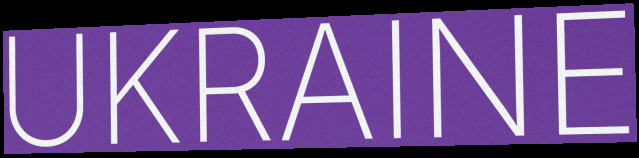
UKRAINE